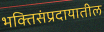
भक्तिसंप्रदायातील